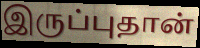
இருப்புதான்